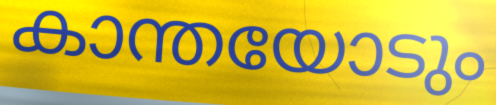
കാന്തയോടും